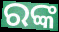
ରଙ୍କ